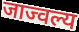
जाज्वल्य